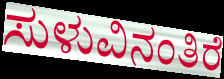
ಸುಳುವಿನಂತಿರೆ